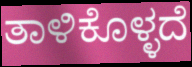
ತಾಳಿಕೊಳ್ಳದೆ